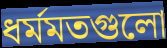
ধর্মমতগুলো